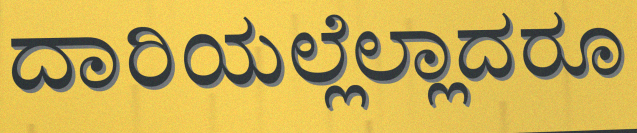
ದಾರಿಯಲ್ಲೆಲ್ಲಾದರೂ